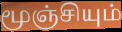
மூஞ்சியும்